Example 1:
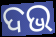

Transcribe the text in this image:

ଦଭ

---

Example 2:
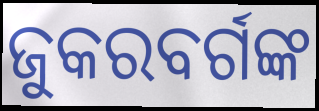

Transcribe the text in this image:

ଜୁକରବର୍ଗଙ୍କ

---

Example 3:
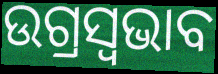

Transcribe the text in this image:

ଉଗ୍ରସ୍ୱଭାବ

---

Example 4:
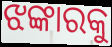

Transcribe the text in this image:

ଝଙ୍କାରକୁ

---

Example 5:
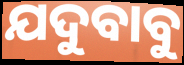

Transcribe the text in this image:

ଯଦୁବାବୁ